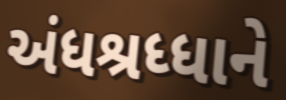
અંધશ્રધ્ધાને